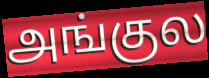
அங்குல